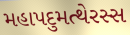
મહાપદુમત્થેરસ્સ